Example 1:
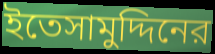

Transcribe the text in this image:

ইতেসামুদ্দিনের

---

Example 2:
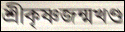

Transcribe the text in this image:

শ্রীকৃষ্ণজন্মখণ্ড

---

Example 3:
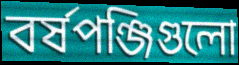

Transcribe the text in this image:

বর্ষপঞ্জিগুলো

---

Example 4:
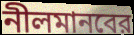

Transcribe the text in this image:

নীলমানবের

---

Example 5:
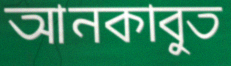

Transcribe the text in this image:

আনকাবুত